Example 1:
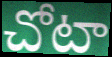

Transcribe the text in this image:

చోటా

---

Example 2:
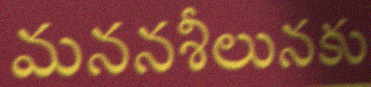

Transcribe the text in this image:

మననశీలునకు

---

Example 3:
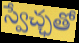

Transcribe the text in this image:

స్వేచ్ఛతో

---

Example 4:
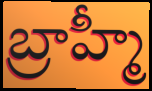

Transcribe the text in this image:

బ్రాహ్మీ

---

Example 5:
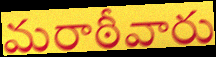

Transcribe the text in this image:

మరాఠీవారు